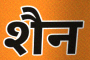
शैन